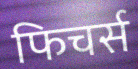
फिचर्स